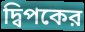
দ্বিপকের